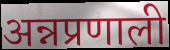
अन्नप्रणाली